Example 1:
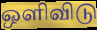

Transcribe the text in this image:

ஒளிவிடு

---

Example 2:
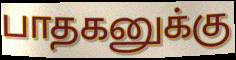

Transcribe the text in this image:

பாதகனுக்கு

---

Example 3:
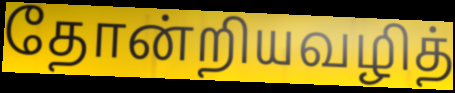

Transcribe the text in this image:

தோன்றியவழித்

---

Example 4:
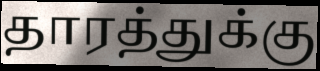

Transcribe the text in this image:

தாரத்துக்கு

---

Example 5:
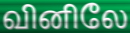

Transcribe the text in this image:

வினிலே